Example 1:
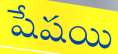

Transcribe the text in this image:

షేషయి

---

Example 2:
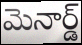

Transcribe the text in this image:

మెనార్డ్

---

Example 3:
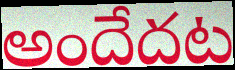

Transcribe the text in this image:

అందేదట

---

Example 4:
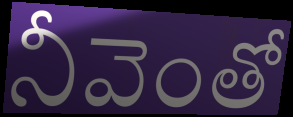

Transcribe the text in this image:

నీవెంతో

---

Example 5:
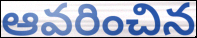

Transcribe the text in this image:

ఆవరించిన